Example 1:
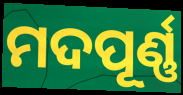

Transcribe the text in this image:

ମଦପୂର୍ଣ୍ଣ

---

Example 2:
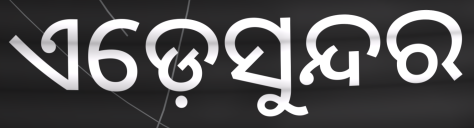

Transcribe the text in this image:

ଏଡ଼େସୁନ୍ଦର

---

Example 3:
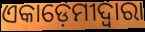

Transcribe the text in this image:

ଏକାଡ଼େମୀଦ୍ୱାରା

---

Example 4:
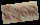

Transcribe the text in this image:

ହିଁଥିଲେ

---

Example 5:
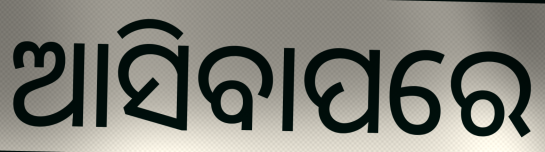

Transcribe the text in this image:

ଆସିବାପରେ